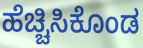
ಹೆಚ್ಚಿಸಿಕೊಂಡ